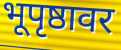
भूपृष्ठावर